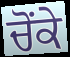
ਚੋਂਕੇ